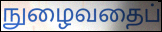
நுழைவதைப்